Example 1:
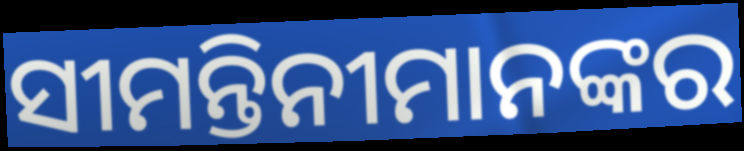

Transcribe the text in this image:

ସୀମନ୍ତିନୀମାନଙ୍କର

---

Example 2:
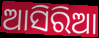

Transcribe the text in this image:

ଆସିରିଆ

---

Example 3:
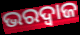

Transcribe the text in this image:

ଭରଦ୍ଵାଜ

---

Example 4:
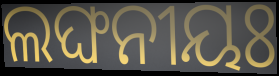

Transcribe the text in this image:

ଲଙ୍ଘନୀୟଃ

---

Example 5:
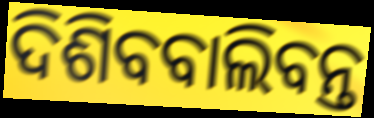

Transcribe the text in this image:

ଦିଶିବବାଲିବନ୍ତ